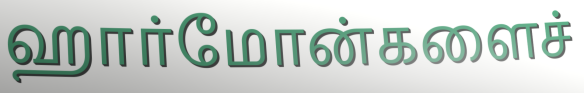
ஹார்மோன்களைச்